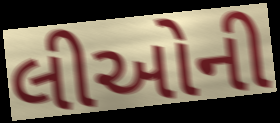
લીઓની